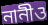
নানীও